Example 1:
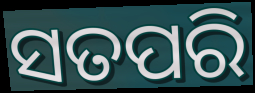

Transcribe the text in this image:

ସତପରି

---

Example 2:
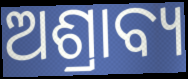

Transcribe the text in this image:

ଅଶ୍ରାବ୍ୟ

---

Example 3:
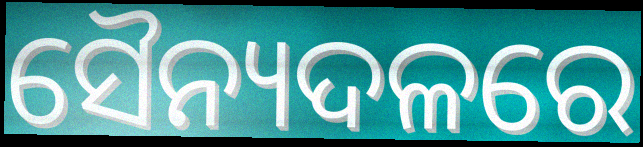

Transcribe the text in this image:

ସୈନ୍ୟଦଳରେ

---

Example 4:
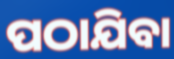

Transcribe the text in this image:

ପଠାଯିବା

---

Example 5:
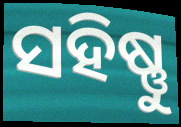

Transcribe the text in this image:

ସହିଷ୍ଣୁ